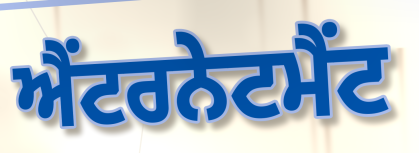
ਐਂਟਰਨੇਟਮੈਂਟ